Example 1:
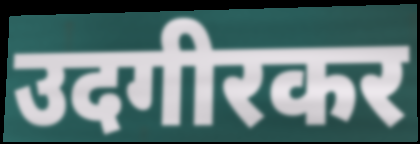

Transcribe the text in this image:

उदगीरकर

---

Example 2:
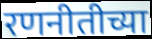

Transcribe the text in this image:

रणनीतीच्या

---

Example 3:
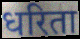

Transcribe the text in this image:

धरिता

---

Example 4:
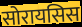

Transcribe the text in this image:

सोरायसिस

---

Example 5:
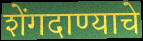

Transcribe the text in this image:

शेंगदाण्याचे